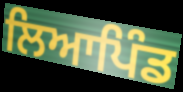
ਲਿਆਪਿੰਡ